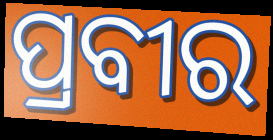
ପ୍ରବୀର